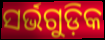
ସର୍ଭଗୁଡ଼ିକ